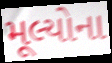
મૂલ્‍યોના